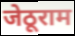
जेठूराम